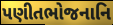
પણીતભોજનાનિ